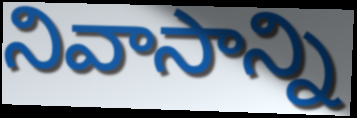
నివాసాన్ని